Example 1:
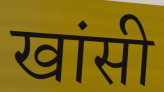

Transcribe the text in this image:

खांसी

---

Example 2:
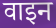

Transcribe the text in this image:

वाइन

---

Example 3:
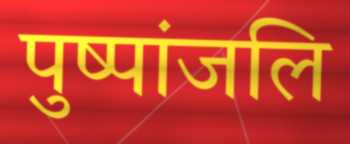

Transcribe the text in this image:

पुष्‍पांजलि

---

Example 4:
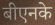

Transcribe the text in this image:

बीएनके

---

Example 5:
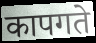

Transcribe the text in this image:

कापगते